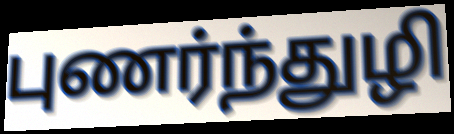
புணர்ந்துழி